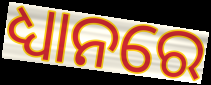
ଧ୍ୟାନରେ